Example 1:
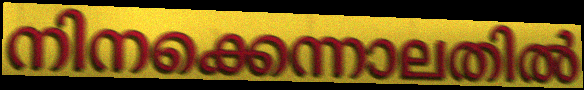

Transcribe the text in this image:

നിനക്കെന്നാലതിൽ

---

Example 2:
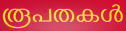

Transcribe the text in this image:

രൂപതകൾ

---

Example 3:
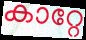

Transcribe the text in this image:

കാറ്റേ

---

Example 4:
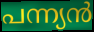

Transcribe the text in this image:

പന്ന്യൻ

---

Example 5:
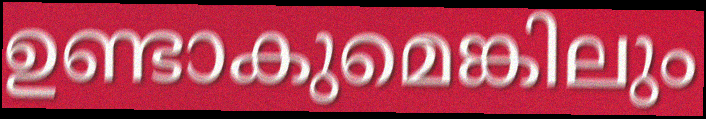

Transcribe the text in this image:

ഉണ്ടാകുമെങ്കിലും